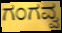
ಗಂಗವ್ವ